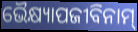
ଭୈକ୍ଷ୍ୟାପଜୀବିନାମ୍